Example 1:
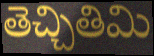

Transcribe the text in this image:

తెచ్చితిమి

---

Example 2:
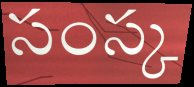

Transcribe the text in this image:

సంస్క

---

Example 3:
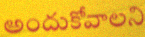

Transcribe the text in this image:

అందుకోవాలని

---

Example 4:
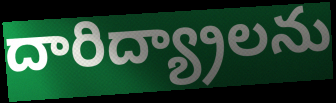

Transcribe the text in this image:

దారిద్య్రాలను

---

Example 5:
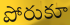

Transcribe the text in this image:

పోరుకూ